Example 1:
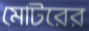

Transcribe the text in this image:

মোটরের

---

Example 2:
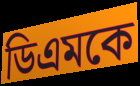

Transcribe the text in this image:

ডিএমকে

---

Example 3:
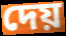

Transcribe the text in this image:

দেয়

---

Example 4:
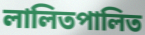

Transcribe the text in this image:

লালিতপালিত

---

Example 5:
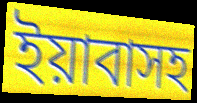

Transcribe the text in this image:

ইয়াবাসহ